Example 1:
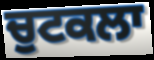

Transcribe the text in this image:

ਚੁਟਕਲਾ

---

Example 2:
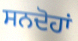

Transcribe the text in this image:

ਸਨਦੋਹਾਂ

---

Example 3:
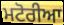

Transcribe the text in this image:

ਮਟੋਰੀਆ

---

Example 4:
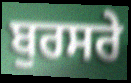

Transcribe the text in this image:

ਬੁਰਸਰੇ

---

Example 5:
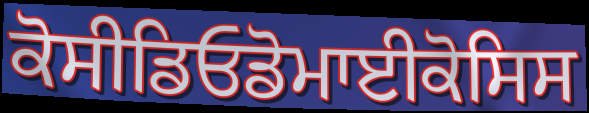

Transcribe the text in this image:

ਕੋਸੀਡਿਓਡੋਮਾਈਕੋਸਿਸ